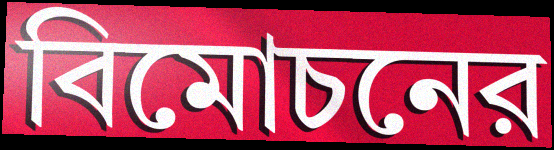
বিমোচনের